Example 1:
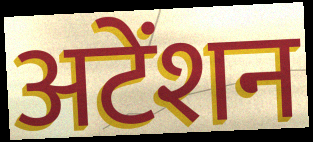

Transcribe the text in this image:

अटेंशन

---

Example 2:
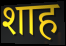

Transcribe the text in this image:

शाह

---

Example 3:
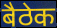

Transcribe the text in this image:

बैठेक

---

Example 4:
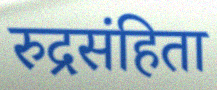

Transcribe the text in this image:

रुद्रसंहिता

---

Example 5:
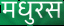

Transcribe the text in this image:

मधुरस